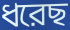
ধরেছ